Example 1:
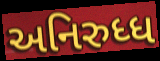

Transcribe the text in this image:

અનિરુધ્ધ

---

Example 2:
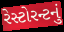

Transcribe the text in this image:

રેસ્ટોરન્ટનું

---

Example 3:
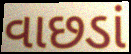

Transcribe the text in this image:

વાછડાં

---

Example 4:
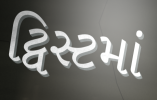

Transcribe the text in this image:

ટ્વિસ્ટમાં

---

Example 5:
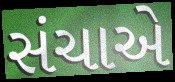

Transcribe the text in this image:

સંચાએ